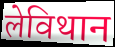
लेविथान